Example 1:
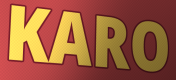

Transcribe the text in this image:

KARO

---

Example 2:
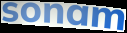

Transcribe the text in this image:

sonam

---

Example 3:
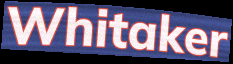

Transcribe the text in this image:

Whitaker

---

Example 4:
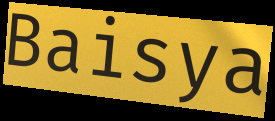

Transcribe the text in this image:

Baisya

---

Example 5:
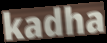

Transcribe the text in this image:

kadha